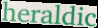
heraldic